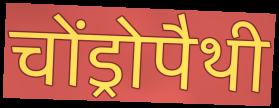
चोंड्रोपैथी